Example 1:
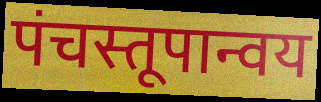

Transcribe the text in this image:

पंचस्तूपान्वय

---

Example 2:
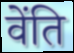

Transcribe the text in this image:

वेंति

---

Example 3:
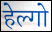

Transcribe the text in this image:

हेल्गो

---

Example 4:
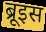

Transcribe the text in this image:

ब्रूइस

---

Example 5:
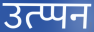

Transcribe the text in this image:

उत्प्पन